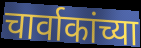
चार्वाकांच्या